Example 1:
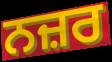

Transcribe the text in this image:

ਨਜ਼ਰ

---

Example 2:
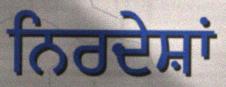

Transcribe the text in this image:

ਨਿਰਦੇਸ਼ਾਂ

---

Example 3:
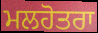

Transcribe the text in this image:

ਮਲਹੋਤਰਾ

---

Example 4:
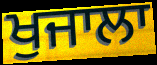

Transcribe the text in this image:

ਖੁਜਾਲਾ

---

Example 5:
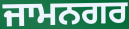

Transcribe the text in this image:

ਜਾਮਨਗਰ